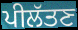
ਪੀਲੱਤਣ